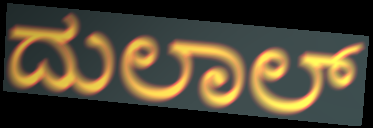
ದುಲಾಲ್